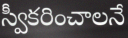
స్వీకరించాలనే